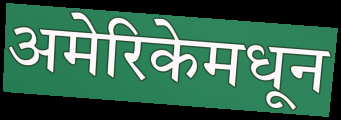
अमेरिकेमधून